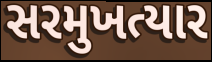
સરમુખત્યાર